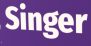
Singer